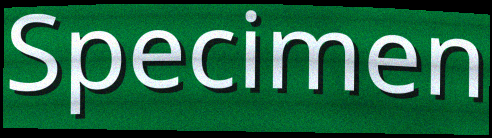
Specimen